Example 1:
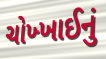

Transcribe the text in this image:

ચોખ્ખાઈનું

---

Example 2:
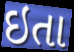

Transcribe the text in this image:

ઇતા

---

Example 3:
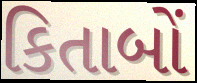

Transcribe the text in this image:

કિતાબોં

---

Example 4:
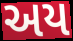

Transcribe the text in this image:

અય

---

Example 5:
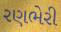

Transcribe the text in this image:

રણભેરી